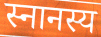
स्नानस्य